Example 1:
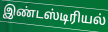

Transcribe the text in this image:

இண்டஸ்டிரியல்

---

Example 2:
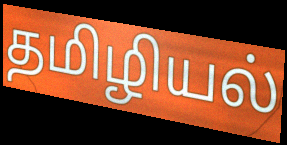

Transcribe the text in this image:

தமிழியல்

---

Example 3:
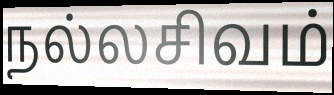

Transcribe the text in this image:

நல்லசிவம்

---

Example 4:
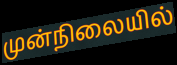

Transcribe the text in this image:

முன்நிலையில்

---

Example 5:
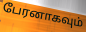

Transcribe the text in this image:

பேரனாகவும்